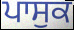
ਪਾਸੁਕ